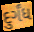
દુર્ગંધ